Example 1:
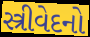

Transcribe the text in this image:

સ્ત્રીવેદનો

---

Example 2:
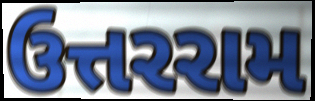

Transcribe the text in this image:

ઉત્તરરામ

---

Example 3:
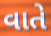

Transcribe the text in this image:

વાતે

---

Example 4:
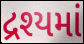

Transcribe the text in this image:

દ્રશ્યમાં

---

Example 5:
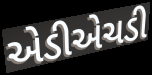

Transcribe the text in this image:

એડીએચડી